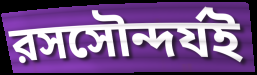
রসসৌন্দর্যই